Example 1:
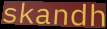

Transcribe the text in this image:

skandh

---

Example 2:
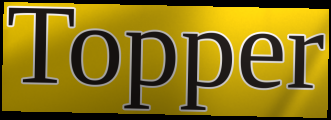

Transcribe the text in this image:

Topper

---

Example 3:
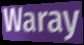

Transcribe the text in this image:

Waray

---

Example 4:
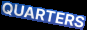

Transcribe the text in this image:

QUARTERS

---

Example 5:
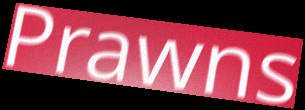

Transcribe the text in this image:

Prawns